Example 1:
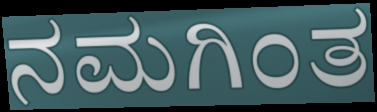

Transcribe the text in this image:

ನಮಗಿಂತ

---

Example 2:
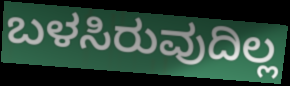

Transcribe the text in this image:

ಬಳಸಿರುವುದಿಲ್ಲ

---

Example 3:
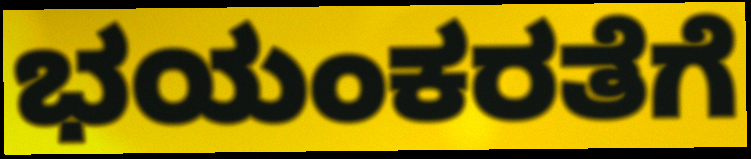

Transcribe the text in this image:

ಭಯಂಕರತೆಗೆ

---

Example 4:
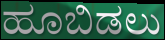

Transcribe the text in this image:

ಹೂಬಿಡಲು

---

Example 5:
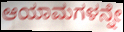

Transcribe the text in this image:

ಆಯಾಮಗಳನ್ನೇ